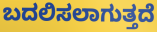
ಬದಲಿಸಲಾಗುತ್ತದೆ